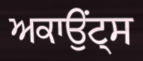
ਅਕਾਉਂਟ੍ਸ